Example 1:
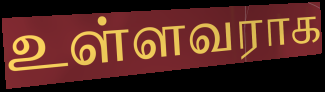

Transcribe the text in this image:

உள்ளவராக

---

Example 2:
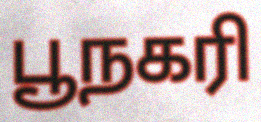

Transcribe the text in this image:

பூநகரி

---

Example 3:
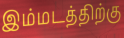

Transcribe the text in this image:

இம்மடத்திற்கு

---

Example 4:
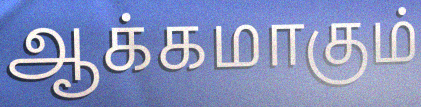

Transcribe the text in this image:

ஆக்கமாகும்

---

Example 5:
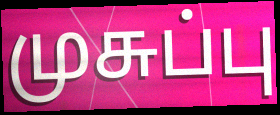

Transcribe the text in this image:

முசுப்பு